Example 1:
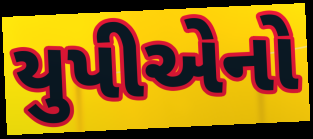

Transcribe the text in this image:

યુપીએનો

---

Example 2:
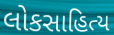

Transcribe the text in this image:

લોકસાહિત્ય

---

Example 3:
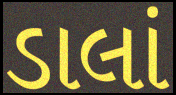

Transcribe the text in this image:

ડાલાં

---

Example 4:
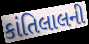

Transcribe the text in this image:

કાંતિલાલની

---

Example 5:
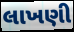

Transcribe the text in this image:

લાખણી